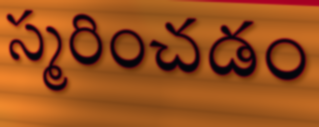
స్మరించడం